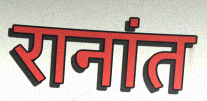
रानांत